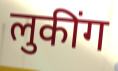
लुकींग